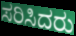
ಸರಿಸಿದರು